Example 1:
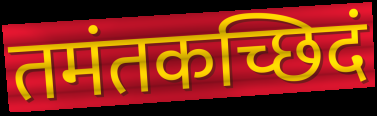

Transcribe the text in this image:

तमंतकच्छिदं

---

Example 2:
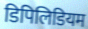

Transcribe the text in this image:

डिपिलिडियम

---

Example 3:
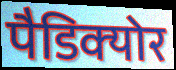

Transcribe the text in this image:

पैडिक्योर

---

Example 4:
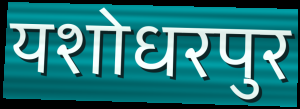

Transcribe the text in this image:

यशोधरपुर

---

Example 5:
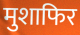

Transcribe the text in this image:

मुशाफिर